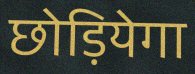
छोड़ियेगा